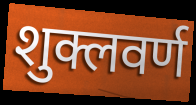
शुक्लवर्ण